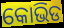
କୋଭିଡ